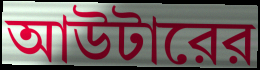
আউটারের